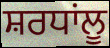
ਸ਼ਰਧਾਂਲੂ